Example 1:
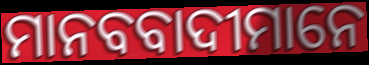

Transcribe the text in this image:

ମାନବବାଦୀମାନେ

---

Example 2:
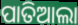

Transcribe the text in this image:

ପାତିଆଲା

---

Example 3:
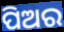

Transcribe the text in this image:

ପିଅର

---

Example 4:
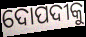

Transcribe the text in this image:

ଦୋପଦୀକୁ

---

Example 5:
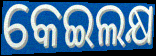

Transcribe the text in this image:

କେଇଲକ୍ଷ